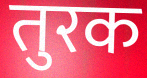
तुरक